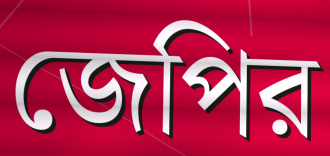
জেপির